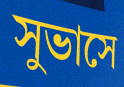
সুভাসে